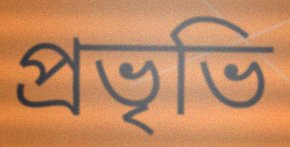
প্রভৃভি